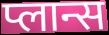
प्‍लान्‍स